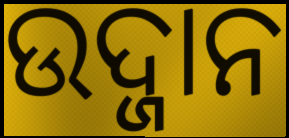
ଉଦ୍ଜାନ